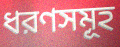
ধরণসমূহ